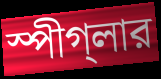
স্পীগ্‌লার